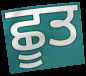
ਛੂਤ